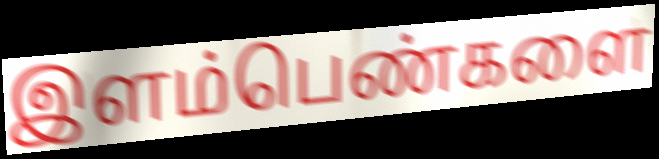
இளம்பெண்களை